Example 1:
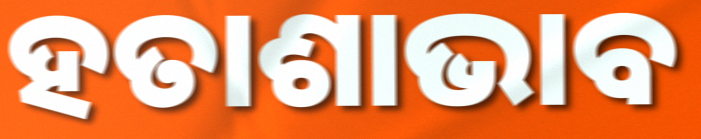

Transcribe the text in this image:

ହତାଶାଭାବ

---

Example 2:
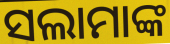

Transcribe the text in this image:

ସଲାମାଙ୍କ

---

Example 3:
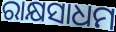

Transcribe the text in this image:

ରାକ୍ଷସାଧମ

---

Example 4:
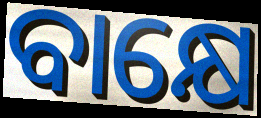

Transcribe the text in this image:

ବାକ୍ଷେ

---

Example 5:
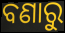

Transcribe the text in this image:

ବଣାରୁ